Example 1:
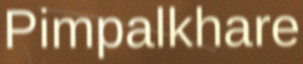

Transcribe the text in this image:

Pimpalkhare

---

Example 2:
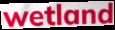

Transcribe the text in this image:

wetland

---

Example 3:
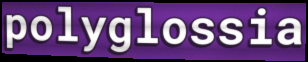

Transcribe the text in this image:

polyglossia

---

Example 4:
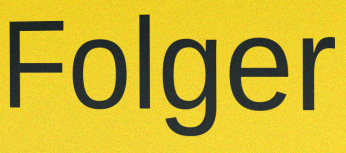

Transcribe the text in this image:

Folger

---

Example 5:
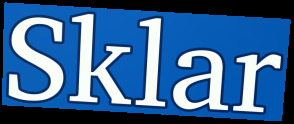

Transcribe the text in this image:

Sklar